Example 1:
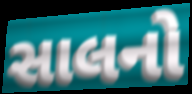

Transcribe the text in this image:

સાલનો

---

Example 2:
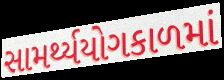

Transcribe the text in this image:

સામર્થ્યયોગકાળમાં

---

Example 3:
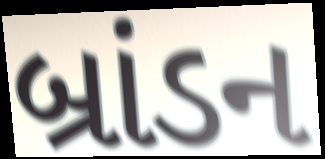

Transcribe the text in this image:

બ્રાંડન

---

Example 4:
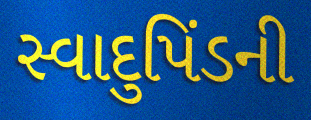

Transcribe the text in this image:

સ્વાદુપિંડની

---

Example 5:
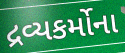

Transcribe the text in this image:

દ્રવ્યકર્મોના